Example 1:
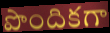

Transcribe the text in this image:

పొందికగా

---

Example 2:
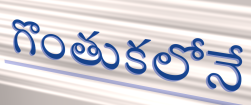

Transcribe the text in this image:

గొంతుకలోనే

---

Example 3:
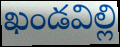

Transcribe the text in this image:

ఖండవిల్లి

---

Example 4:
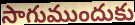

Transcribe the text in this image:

సాగుముందుకు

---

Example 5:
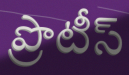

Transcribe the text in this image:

ప్రొటీస్